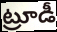
ట్రూడీ